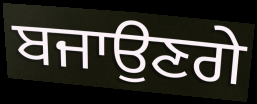
ਬਜਾਉਣਗੇ